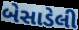
બેસાડેલી